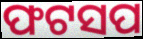
ଫଟସପ